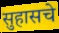
सुहासचे